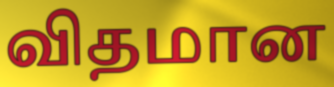
விதமான